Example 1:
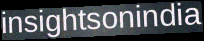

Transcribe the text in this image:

insightsonindia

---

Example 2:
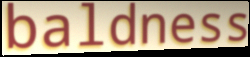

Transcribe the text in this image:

baldness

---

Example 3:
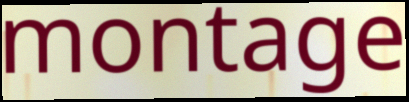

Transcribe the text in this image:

montage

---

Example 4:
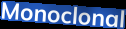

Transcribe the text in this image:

Monoclonal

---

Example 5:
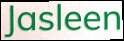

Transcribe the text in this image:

Jasleen